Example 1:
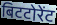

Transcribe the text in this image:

बिटटोरेंट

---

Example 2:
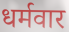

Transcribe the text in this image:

धर्मवार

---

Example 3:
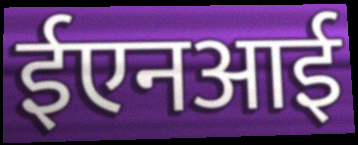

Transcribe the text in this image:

ईएनआई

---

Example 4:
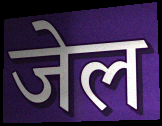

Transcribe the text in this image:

जेल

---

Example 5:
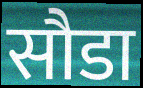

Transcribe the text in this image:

सौडा